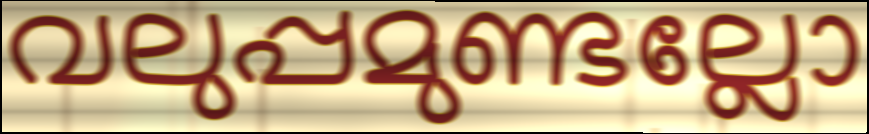
വലുപ്പമുണ്ടല്ലോ